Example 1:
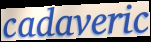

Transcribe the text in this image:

cadaveric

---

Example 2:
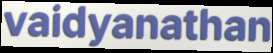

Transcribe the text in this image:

vaidyanathan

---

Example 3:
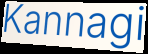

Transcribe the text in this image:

Kannagi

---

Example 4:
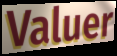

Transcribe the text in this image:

Valuer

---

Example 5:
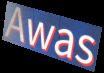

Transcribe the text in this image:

Awas